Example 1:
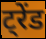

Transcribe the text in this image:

ट्रेंड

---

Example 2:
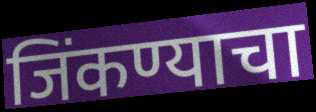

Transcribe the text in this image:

जिंकण्याचा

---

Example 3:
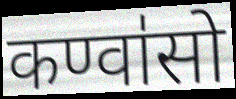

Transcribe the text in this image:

कण्वा॑सो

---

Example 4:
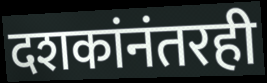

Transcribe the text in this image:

दशकांनंतरही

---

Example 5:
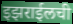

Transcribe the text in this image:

इझराईलची